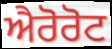
ਐਰੋਰੋਟ